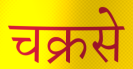
चक्रसे